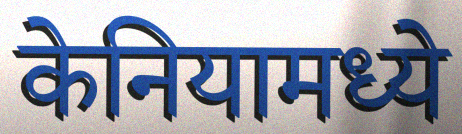
केनियामध्ये